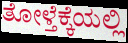
ತೋಳ್ತೆಕ್ಕೆಯಲ್ಲಿ